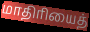
மாதிரியைத்